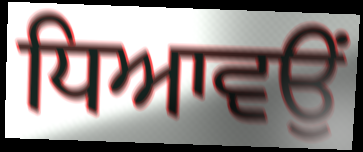
ਧਿਆਵਉਂ